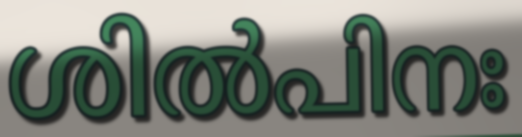
ശിൽപിനഃ